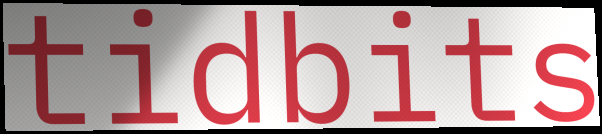
tidbits